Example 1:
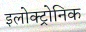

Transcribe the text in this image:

इलोक्ट्रोनिक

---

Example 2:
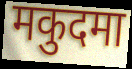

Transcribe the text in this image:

मकुदमा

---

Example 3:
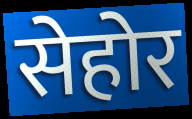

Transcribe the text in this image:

सेहोर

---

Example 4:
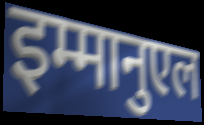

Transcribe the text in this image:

इम्मानुएल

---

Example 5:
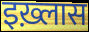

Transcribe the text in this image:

इख़्लास